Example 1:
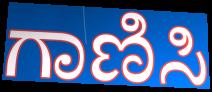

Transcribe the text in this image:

ಗಾಣಿಸಿ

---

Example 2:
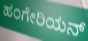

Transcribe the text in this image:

ಹಂಗೇರಿಯನ್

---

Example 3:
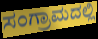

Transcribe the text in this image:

ಸಂಗ್ರಾಮದಲ್ಲಿ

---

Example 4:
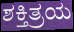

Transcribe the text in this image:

ಶಕ್ತಿತ್ರಯ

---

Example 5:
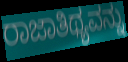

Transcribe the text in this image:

ರಾಜಾತಿಥ್ಯವನ್ನು